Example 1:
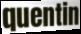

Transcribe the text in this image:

quentin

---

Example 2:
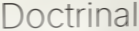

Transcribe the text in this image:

Doctrinal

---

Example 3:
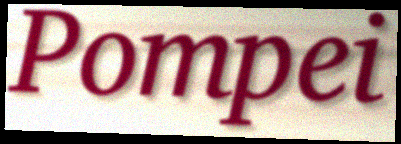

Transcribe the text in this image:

Pompei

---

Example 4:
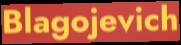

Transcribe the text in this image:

Blagojevich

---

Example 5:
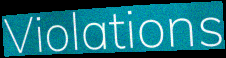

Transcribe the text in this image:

Violations